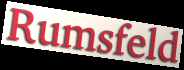
Rumsfeld